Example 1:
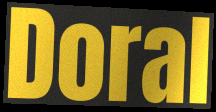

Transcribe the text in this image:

Doral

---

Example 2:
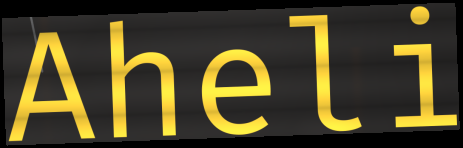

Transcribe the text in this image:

Aheli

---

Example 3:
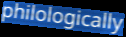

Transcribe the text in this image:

philologically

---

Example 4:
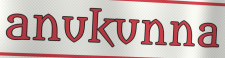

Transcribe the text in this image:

anukunna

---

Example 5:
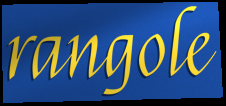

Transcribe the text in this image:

rangole